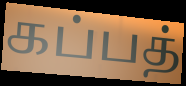
கப்பத்